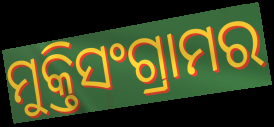
ମୁକ୍ତିସଂଗ୍ରାମର